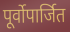
पूर्वोपार्जित